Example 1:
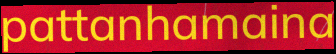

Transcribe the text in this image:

pattanhamaina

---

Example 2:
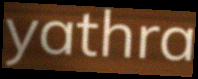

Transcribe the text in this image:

yathra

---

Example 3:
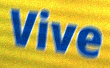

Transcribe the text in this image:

Vive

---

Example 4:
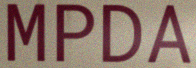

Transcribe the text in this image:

MPDA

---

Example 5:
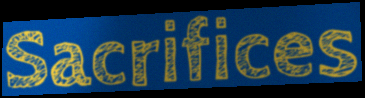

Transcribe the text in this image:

Sacrifices